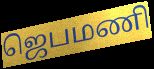
ஜெபமணி